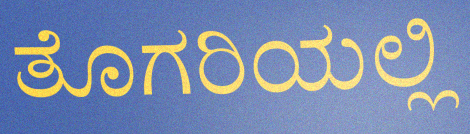
ತೊಗರಿಯಲ್ಲಿ